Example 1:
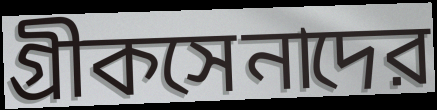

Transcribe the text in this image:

গ্রীকসেনাদের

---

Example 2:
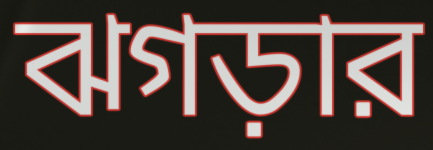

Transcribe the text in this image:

ঝগড়ার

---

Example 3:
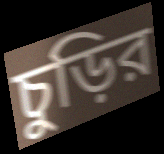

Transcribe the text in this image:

চুড়ির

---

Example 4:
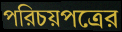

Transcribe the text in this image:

পরিচয়পত্রের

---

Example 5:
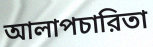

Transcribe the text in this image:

আলাপচারিতা